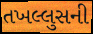
તખલ્લુસની